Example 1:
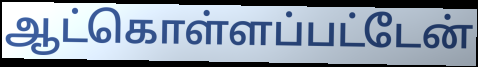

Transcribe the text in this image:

ஆட்கொள்ளப்பட்டேன்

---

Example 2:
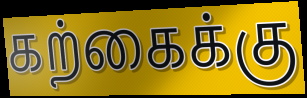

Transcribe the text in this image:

கற்கைக்கு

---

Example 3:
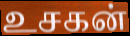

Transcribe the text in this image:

உசகன்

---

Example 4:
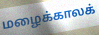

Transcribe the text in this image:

மழைக்காலக்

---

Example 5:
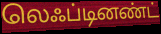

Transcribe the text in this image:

லெஃப்டினண்ட்